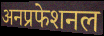
अनप्रफेशनल